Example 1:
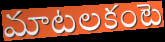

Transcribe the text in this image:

మాటలకంటె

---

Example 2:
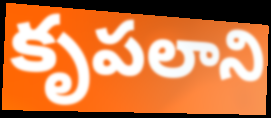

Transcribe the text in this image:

కృపలాని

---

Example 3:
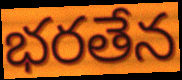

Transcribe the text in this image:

భరతేన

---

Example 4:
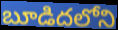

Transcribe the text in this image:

బూడిదలోని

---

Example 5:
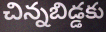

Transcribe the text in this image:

చిన్నబిడ్డకు